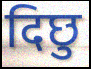
दिछु